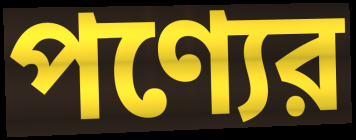
পণ্যের